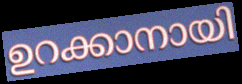
ഉറക്കാനായി